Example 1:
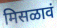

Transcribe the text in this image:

मिसळावं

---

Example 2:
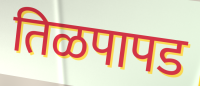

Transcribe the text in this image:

तिळपापड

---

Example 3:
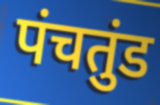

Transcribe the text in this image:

पंचतुंड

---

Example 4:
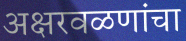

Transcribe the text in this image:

अक्षरवळणांचा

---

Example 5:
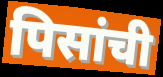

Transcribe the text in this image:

पिसांची